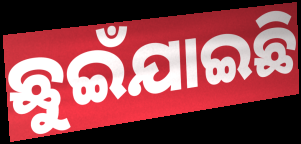
ଛୁଇଁଯାଇଛି